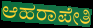
ಆಹರಾಪೇತಿ